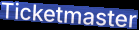
Ticketmaster